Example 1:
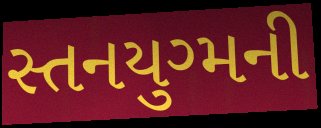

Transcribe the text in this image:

સ્તનયુગ્મની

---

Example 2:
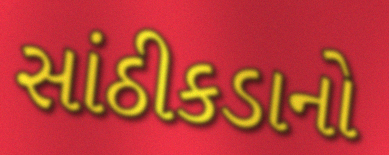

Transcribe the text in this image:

સાંઠીકડાનો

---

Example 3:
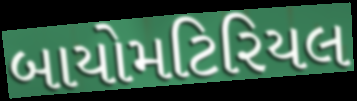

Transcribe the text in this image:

બાયોમટિરિયલ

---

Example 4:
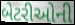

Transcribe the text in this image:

બેટરીઓની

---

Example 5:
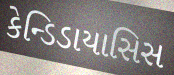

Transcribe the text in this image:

કેન્ડિડાયાસિસ